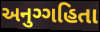
અનુગ્ગહિતા